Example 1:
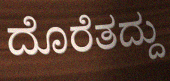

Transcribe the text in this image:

ದೊರೆತದ್ದು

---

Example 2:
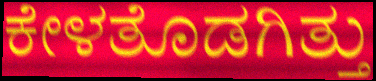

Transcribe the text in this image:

ಕೇಳತೊಡಗಿತ್ತು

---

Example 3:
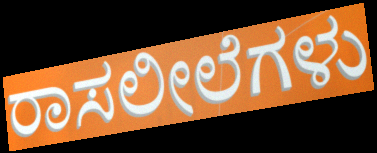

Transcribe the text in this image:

ರಾಸಲೀಲೆಗಳು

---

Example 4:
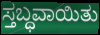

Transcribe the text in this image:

ಸ್ತಬ್ಧವಾಯಿತು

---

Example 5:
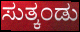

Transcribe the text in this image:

ಸುತ್ಕಂಡು